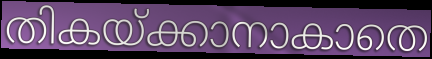
തികയ്ക്കാനാകാതെ